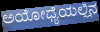
ಅಯೋಧ್ಯೆಯಲ್ಲಿನ